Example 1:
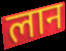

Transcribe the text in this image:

लान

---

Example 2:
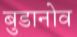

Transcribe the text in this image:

बुडानोव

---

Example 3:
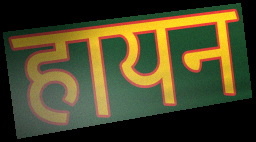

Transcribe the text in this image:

हायन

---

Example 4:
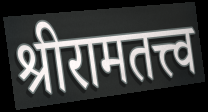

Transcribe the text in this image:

श्रीरामतत्त्व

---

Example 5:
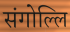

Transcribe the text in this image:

संगोल्लि